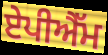
ਏਪੀਐੱਮ